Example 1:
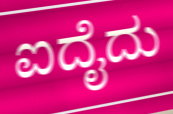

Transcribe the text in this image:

ಐದೈದು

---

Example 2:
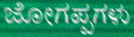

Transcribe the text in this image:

ಜೋಗಪ್ಪಗಳು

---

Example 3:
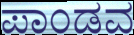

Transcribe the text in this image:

ಪಾಂಡವ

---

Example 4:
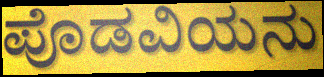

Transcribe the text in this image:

ಪೊಡವಿಯನು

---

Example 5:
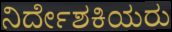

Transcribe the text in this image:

ನಿರ್ದೇಶಕಿಯರು